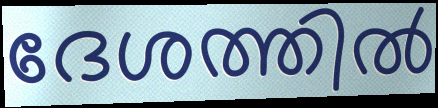
ദേശത്തിൽ